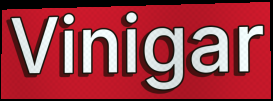
Vinigar